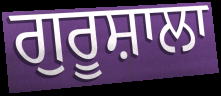
ਗੁਰੂਸ਼ਾਲਾ